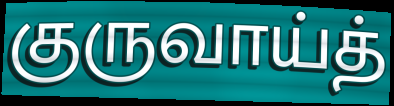
குருவாய்த்